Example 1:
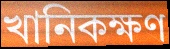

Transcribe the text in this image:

খানিকক্ষণ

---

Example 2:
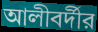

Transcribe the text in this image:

আলীবর্দীর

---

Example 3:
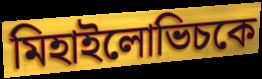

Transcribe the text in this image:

মিহাইলোভিচকে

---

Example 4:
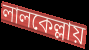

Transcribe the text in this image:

লালকেল্লায়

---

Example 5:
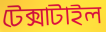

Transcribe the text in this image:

টেক্সাটাইল